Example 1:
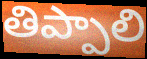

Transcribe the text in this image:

తిప్పాలి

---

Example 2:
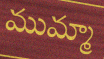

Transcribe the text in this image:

ముమ్మా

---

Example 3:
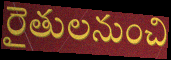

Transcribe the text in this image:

రైతులనుంచి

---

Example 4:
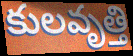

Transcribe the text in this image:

కులవృత్తి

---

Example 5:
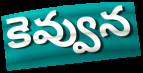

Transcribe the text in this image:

కెవ్వున